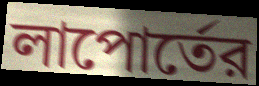
লাপোর্তের